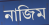
নাজিম